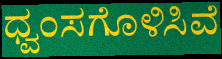
ಧ್ವಂಸಗೊಳಿಸಿವೆ